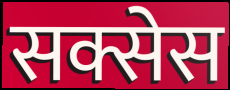
सक्सेस